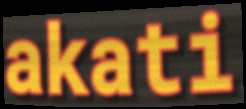
akati